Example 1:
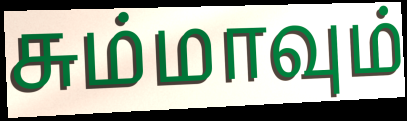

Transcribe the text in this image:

சும்மாவும்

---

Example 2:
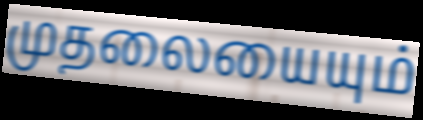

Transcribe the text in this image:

முதலையையும்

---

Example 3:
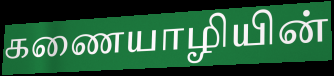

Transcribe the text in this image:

கணையாழியின்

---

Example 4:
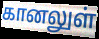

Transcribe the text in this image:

கானலுள்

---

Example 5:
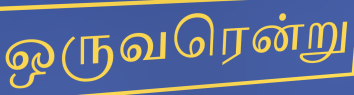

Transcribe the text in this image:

ஒருவரென்று